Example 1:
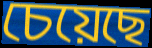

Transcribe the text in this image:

চেয়েছে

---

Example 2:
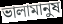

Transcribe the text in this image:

ভালামানুষ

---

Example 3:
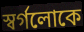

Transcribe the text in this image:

স্বর্গলোকে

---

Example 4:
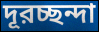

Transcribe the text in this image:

দূরচ্ছন্দা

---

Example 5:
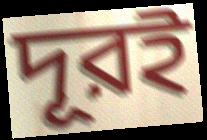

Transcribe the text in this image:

দূরই